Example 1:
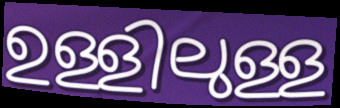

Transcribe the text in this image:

ഉള്ളിലുള്ള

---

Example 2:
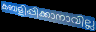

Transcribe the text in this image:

കബളിപ്പിക്കാനാവില്ല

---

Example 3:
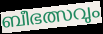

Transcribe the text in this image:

ബീഭത്സവും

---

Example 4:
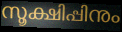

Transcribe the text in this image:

സൂക്ഷിപ്പിനും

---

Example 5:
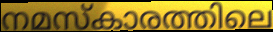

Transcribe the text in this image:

നമസ്കാരത്തിലെ